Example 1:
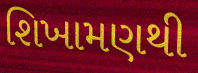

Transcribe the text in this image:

શિખામણથી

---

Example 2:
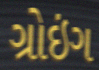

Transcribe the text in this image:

ગ્રોઇંગ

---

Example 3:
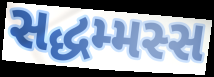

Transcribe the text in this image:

સદ્ધમ્મસ્સ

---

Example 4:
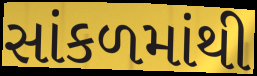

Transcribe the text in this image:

સાંકળમાંથી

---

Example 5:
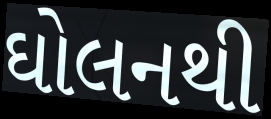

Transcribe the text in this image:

ઘોલનથી